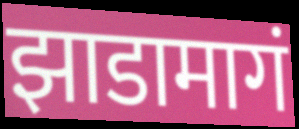
झाडामागं